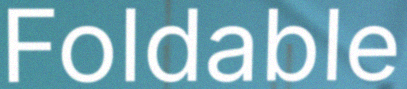
Foldable